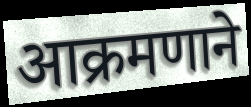
आक्रमणाने